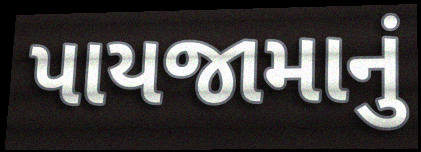
પાયજામાનું